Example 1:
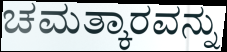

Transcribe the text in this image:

ಚಮತ್ಕಾರವನ್ನು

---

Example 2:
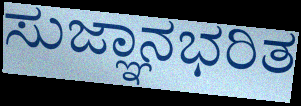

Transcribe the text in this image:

ಸುಜ್ಞಾನಭರಿತ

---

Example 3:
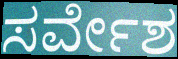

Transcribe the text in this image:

ಸರ್ವೇಶ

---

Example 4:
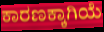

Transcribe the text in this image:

ಕಾರಣಕ್ಕಾಗಿಯೆ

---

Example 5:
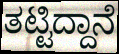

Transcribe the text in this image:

ತಟ್ಟಿದ್ದಾನೆ